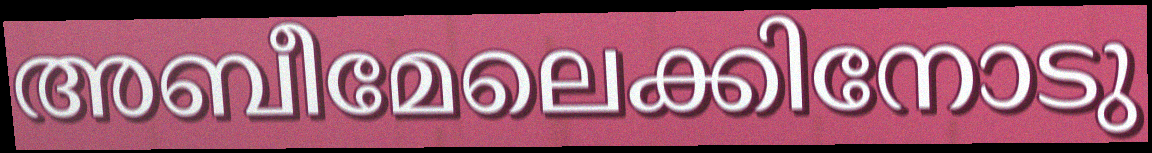
അബീമേലെക്കിനോടു